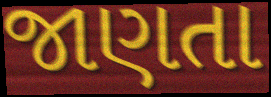
જાણતા